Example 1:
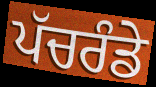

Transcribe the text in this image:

ਪੱਚਰੰਡੇ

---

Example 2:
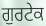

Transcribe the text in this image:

ਗੁਰਟੇਕ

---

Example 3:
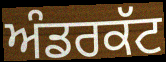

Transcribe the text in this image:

ਅੰਡਰਕੱਟ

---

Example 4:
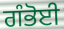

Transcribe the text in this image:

ਗੰਭੋਈ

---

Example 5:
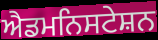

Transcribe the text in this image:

ਐਡਮਨਿਸਟੇਸ਼ਨ